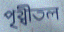
পৃথ্বীতল